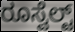
ರೂಸ್ವೆಲ್ಟ್